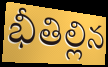
భీతిల్లిన